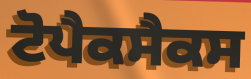
ਟੋਪੈਕਸੈਕਸ